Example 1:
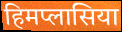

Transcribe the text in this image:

हिमप्लासिया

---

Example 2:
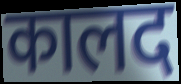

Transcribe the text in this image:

कालद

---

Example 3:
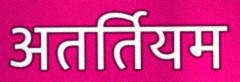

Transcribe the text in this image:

अतर्तियम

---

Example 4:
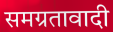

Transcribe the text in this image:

समग्रतावादी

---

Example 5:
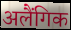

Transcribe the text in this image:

अलैंगिक